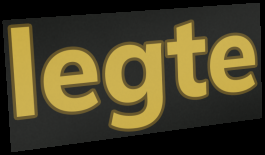
legte